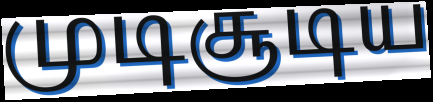
முடிசூடிய